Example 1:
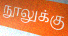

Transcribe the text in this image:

நூலுக்கு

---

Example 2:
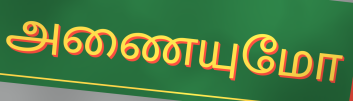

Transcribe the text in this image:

அணையுமோ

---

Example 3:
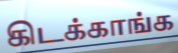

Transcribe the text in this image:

கிடக்காங்க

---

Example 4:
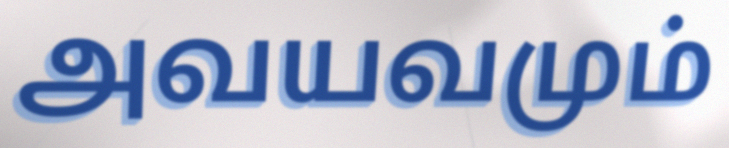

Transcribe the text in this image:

அவயவமும்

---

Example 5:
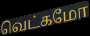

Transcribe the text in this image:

வெட்கமோ